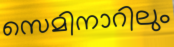
സെമിനാറിലും